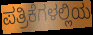
ಪತ್ರಿಕೆಗಳಲ್ಲಿಯ